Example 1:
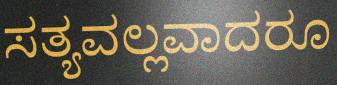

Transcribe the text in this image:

ಸತ್ಯವಲ್ಲವಾದರೂ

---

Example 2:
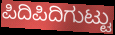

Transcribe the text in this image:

ಪಿದಿಪಿದಿಗುಟ್ಟು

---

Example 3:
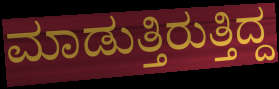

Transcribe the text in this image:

ಮಾಡುತ್ತಿರುತ್ತಿದ್ದ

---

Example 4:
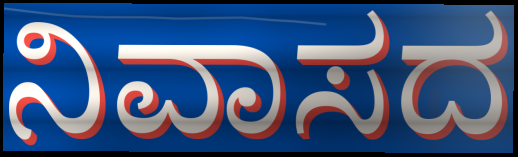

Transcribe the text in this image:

ನಿವಾಸದ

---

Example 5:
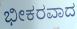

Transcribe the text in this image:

ಭೀಕರವಾದ